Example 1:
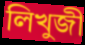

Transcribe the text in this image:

লিখুজী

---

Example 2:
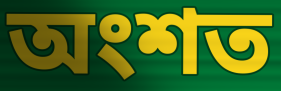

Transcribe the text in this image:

অংশত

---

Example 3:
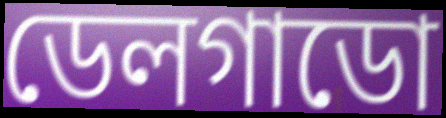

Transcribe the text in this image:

ডেলগাডো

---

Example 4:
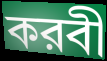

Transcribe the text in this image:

করবী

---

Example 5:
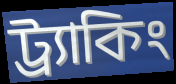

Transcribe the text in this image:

ট্র্যাকিং